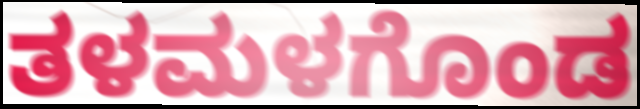
ತಳಮಳಗೊಂಡ